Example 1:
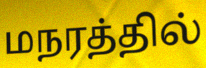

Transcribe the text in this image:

மநரத்தில்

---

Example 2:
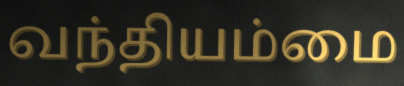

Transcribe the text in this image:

வந்தியம்மை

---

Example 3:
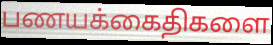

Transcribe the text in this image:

பணயக்கைதிகளை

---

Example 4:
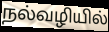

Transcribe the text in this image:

நல்வழியில்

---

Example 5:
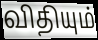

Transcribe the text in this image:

விதியும்